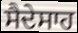
ਸੈਦੇਸਾਹ